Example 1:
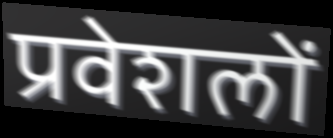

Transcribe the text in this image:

प्रवेशलों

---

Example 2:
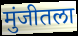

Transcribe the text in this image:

मुंजीतला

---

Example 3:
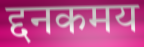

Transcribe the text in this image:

द्दनकमय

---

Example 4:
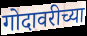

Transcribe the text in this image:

गोदावरीच्या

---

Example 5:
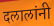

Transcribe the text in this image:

दलालांनी